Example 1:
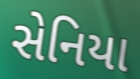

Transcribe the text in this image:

સેનિયા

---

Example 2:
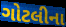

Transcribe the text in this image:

ગોટલીના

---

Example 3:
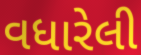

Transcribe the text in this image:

વધારેલી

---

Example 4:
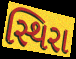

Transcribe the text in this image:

સ્થિરા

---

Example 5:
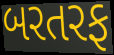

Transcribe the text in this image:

બરતરફ